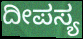
ದೀಪಸ್ಯ